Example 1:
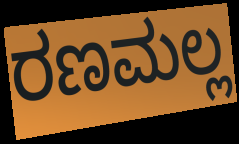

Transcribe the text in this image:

ರಣಮಲ್ಲ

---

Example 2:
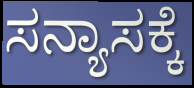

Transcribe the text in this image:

ಸನ್ಯಾಸಕ್ಕೆ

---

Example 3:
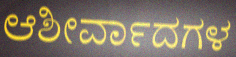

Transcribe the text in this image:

ಆಶೀರ್ವಾದಗಳ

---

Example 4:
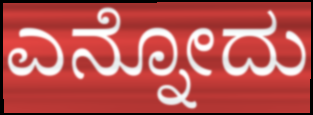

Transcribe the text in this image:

ಎನ್ನೋದು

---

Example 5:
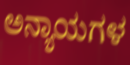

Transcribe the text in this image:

ಅನ್ಯಾಯಗಳ